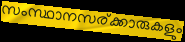
സംസ്ഥാനസര്ക്കാരുകളും